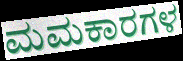
ಮಮಕಾರಗಳ